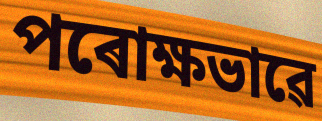
পৰোক্ষভাৱে